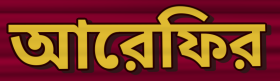
আরেফির